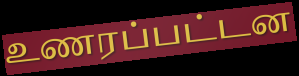
உணரப்பட்டன